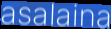
asalaina